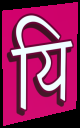
यि